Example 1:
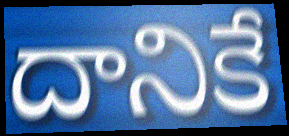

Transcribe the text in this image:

దానికే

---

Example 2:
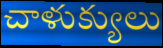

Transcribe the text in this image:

చాళుక్యులు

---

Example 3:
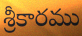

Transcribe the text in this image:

శ్రీకారము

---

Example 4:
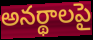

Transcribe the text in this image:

అనర్థాలపై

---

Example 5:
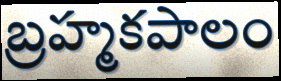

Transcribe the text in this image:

బ్రహ్మకపాలం